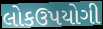
લોકઉપયોગી